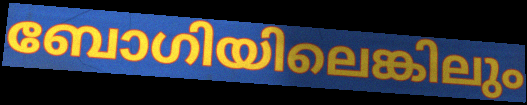
ബോഗിയിലെങ്കിലും